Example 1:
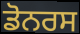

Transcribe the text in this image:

ਡੋਨਰਸ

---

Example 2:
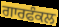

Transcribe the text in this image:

ਗਾਰਫੰਕਲ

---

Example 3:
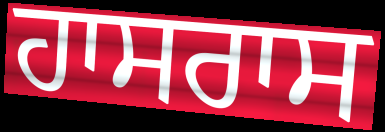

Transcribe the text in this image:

ਹਾਸਰਾਸ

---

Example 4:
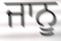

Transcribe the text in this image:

ਜਾਨੂ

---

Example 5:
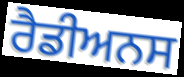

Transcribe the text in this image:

ਰੈਡੀਅਨਸ